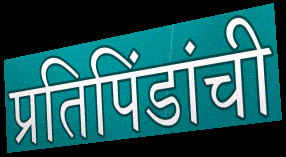
प्रतिपिंडांची